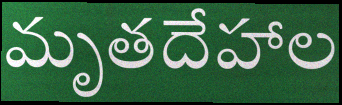
మృతదేహాల